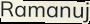
Ramanuj